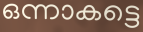
ഒന്നാകട്ടെ